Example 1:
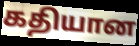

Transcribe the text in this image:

கதியான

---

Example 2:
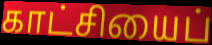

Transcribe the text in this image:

காட்சியைப்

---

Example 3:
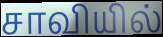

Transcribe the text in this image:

சாவியில்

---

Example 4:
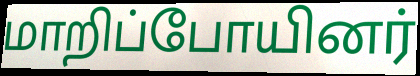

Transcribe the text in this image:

மாறிப்போயினர்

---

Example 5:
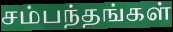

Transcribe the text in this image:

சம்பந்தங்கள்